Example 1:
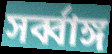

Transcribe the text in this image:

সর্ব্বাঙ্গ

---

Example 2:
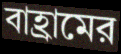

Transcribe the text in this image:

বাহ্রামের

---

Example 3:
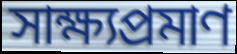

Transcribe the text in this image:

সাক্ষ্যপ্রমাণ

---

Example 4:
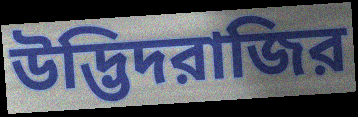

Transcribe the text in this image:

উদ্ভিদরাজির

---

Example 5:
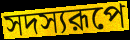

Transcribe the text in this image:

সদস্যরূপে